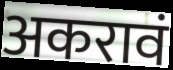
अकरावं